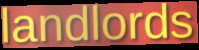
landlords